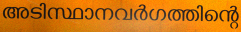
അടിസ്ഥാനവർഗത്തിന്റെ